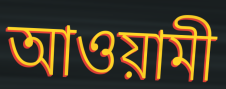
আওয়ামী